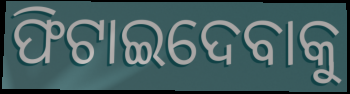
ଫିଟାଇଦେବାକୁ